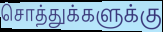
சொத்துக்களுக்கு